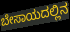
ಬೇಸಾಯದಲ್ಲಿನ